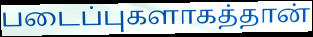
படைப்புகளாகத்தான்